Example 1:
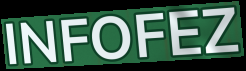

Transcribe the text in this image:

INFOFEZ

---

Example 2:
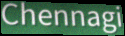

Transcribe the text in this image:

Chennagi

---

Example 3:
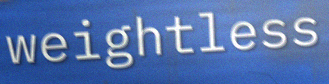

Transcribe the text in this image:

weightless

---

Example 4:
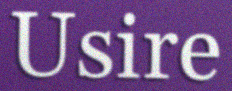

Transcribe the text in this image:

Usire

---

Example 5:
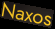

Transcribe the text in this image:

Naxos